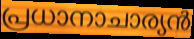
പ്രധാനാചാര്യൻ